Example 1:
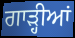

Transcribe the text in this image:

ਗਾੜ੍ਹੀਆਂ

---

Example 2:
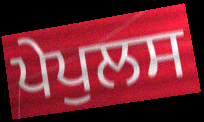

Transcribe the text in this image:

ਪੇਪੁਲਸ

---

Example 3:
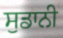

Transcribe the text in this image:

ਸੁਡਾਨੀ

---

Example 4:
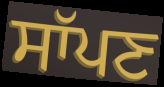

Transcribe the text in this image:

ਸਾੱਪਣ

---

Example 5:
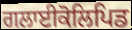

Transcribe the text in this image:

ਗਲਾਈਕੋਲਿਪਿਡ